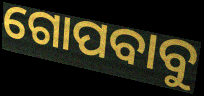
ଗୋପବାବୁ